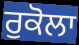
ਰੁਕੋਲਾ